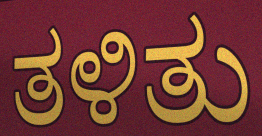
ತಳಿತು